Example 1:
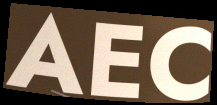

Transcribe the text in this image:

AEC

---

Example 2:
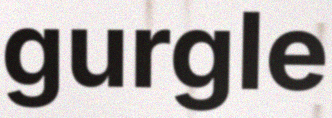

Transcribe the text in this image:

gurgle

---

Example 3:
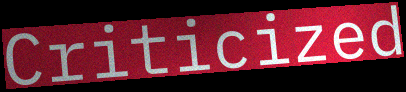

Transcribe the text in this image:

Criticized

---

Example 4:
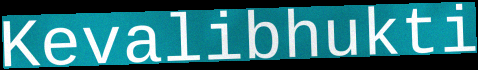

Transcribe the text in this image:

Kevalibhukti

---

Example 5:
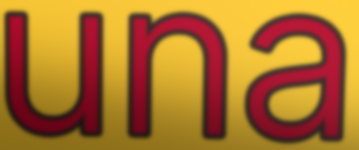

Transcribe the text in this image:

una